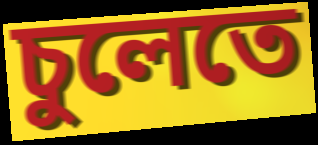
চুলেতে